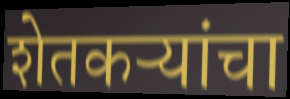
शेतकऱ्यांचा